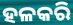
ହଳକରି